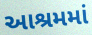
આશ્રમમાં